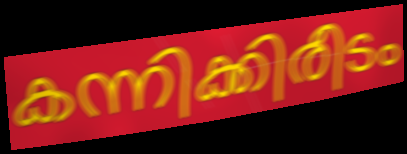
കന്നിക്കിരീടം